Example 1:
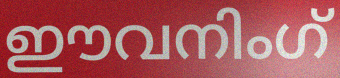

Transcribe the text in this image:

ഈവനിംഗ്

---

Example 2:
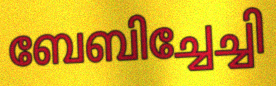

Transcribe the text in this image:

ബേബിച്ചേച്ചി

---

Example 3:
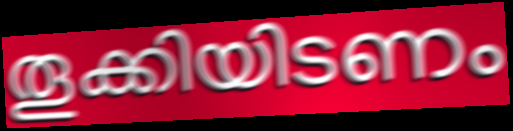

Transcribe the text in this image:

തൂക്കിയിടണം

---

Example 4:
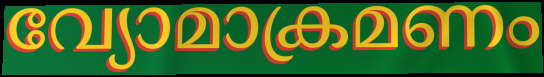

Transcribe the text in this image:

വ്യോമാക്രമണം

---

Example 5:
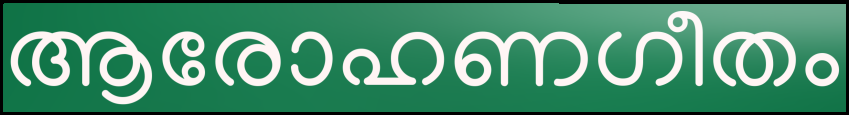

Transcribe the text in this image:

ആരോഹണഗീതം